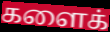
களைக்